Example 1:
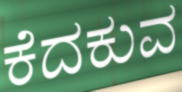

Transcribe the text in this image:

ಕೆದಕುವ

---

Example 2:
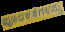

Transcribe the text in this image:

ಪೂರಕತೆಗಳನ್ನು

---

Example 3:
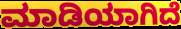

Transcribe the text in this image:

ಮಾಡಿಯಾಗಿದೆ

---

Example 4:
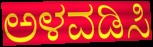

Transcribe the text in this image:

ಅಳವಡಿಸಿ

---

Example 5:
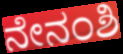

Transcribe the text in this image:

ನೇನಂಶಿ